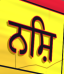
ਨਸ਼ਿ